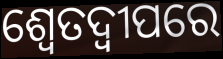
ଶ୍ୱେତଦ୍ୱୀପରେ